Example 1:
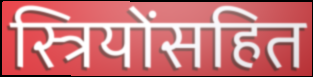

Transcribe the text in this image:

स्त्रियोंसहित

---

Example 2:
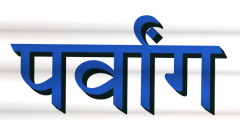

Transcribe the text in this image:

पर्वांग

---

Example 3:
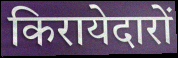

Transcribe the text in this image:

किरायेदारों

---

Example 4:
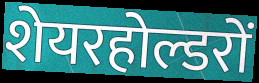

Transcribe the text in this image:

शेयरहोल्डरों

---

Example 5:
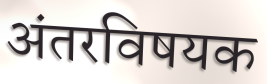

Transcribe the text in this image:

अंतरविषयक